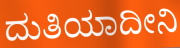
ದುತಿಯಾದೀನಿ